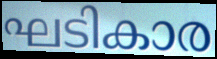
ഘടികാര